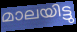
മാലയിട്ടു